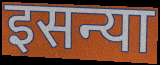
इसन्या